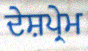
ਦੇਸ਼ਪ੍ਰੇਮ